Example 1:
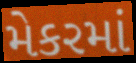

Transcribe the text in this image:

મેકરમાં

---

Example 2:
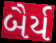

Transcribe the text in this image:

બૈર્ય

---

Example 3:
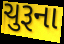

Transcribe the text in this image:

ચુરૂના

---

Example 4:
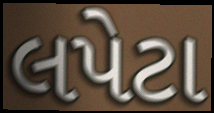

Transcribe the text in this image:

લપેટા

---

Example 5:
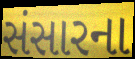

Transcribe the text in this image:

સંસારના